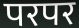
परपर